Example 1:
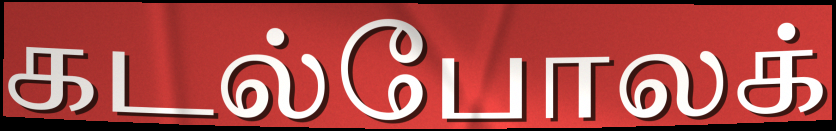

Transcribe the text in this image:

கடல்போலக்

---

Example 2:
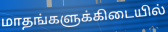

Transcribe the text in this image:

மாதங்களுக்கிடையில்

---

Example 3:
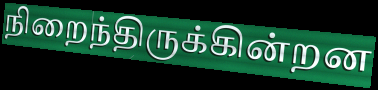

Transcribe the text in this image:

நிறைந்திருக்கின்றன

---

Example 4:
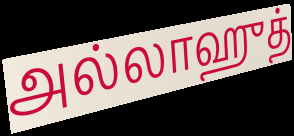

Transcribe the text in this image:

அல்லாஹுத்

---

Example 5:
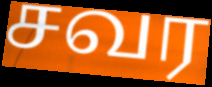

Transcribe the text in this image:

சவர